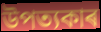
উপত্যকাৰ